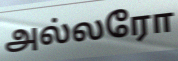
அல்லரோ